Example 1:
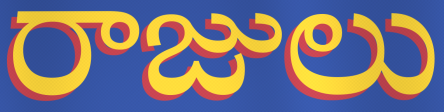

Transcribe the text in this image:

రాజులు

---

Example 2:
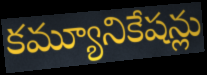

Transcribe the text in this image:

కమ్యూనికేషన్లు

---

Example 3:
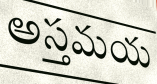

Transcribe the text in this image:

అస్తమయ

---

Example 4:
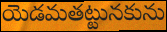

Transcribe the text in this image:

యెడమతట్టునకును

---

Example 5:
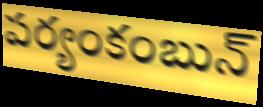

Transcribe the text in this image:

పర్యంకంబున్